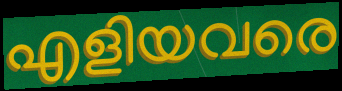
എളിയവരെ